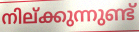
നില്ക്കുന്നുണ്ട്